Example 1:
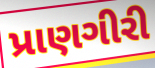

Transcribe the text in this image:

પ્રાણગીરી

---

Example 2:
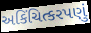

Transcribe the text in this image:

અકિંચિત્કરપણું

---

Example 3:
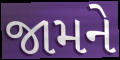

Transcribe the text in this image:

જામને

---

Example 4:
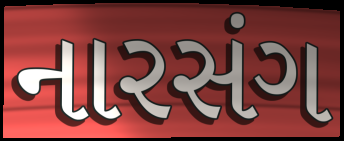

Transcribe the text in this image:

નારસંગ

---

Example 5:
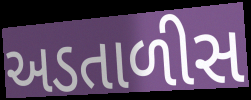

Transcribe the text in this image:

અડતાળીસ